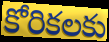
కోరికలకు